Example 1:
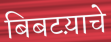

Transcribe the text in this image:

बिबटय़ाचे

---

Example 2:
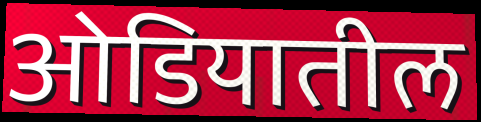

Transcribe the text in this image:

ओडियातील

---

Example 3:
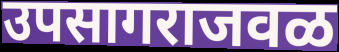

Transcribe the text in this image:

उपसागराजवळ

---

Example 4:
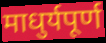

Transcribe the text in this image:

माधुर्यपूर्ण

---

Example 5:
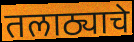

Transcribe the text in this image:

तलाठ्याचे